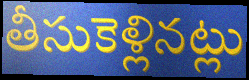
తీసుకెళ్లినట్లు